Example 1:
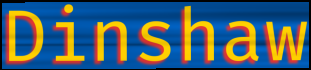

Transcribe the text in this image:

Dinshaw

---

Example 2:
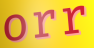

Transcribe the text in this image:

orr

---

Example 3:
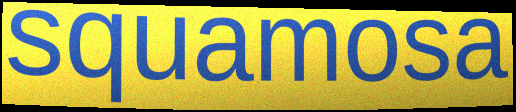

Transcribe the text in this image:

squamosa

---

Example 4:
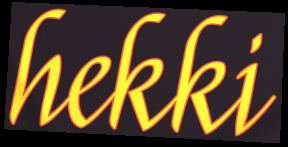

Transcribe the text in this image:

hekki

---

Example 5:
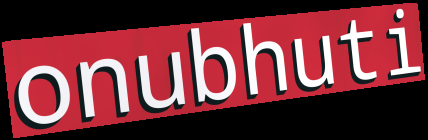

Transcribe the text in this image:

onubhuti